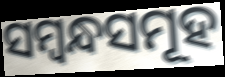
ସମ୍ୱନ୍ଧସମୂହ